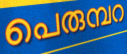
പെരുമ്പറ